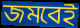
জমবেই